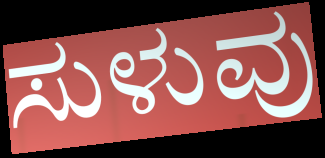
ಸುಳುವು